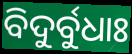
ବିଦୁର୍ବୁଧାଃ